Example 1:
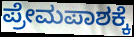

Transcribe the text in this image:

ಪ್ರೇಮಪಾಶಕ್ಕೆ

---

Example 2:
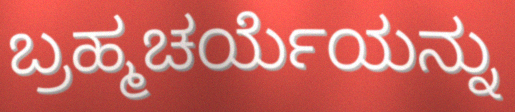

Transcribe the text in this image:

ಬ್ರಹ್ಮಚರ್ಯೆಯನ್ನು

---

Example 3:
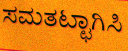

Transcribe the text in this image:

ಸಮತಟ್ಟಾಗಿಸಿ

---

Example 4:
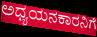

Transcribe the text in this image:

ಅಧ್ಯಯನಕಾರನಿಗೆ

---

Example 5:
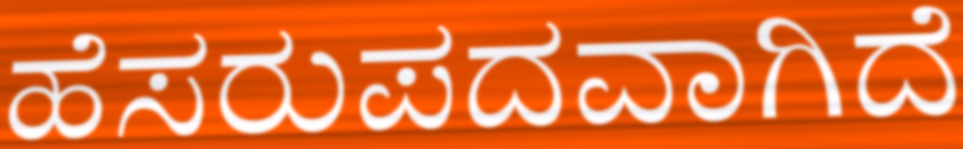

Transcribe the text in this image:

ಹೆಸರುಪದವಾಗಿದೆ